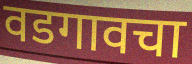
वडगावचा